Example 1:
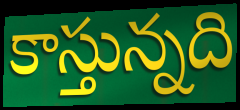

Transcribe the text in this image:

కాస్తున్నది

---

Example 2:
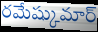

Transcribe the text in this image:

రమేష్కుమార్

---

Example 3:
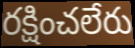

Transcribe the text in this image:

రక్షించలేరు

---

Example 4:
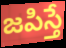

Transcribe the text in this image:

జపిస్తే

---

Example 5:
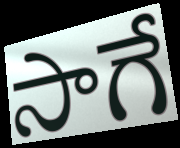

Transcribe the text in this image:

సాగే